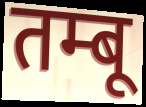
तम्बू